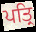
ਪਤ੍ਰਿ